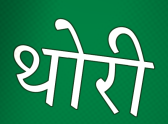
थोरी